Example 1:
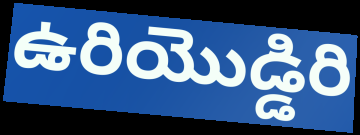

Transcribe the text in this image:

ఉరియొడ్డిరి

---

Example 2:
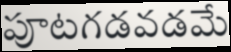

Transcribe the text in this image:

పూటగడవడమే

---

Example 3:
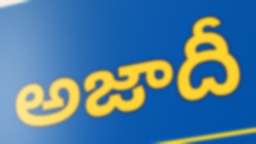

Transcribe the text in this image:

అజాదీ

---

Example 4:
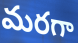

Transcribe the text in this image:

మరగా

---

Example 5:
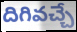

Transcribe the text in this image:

దిగివచ్చే